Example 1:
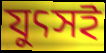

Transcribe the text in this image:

যুৎসই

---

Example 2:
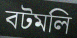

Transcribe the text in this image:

বটমলি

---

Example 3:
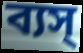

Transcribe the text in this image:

ব্যস্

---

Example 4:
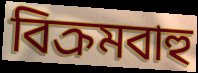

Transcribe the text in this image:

বিক্রমবাহু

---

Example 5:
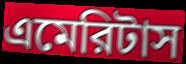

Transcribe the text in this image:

এমেরিটাস